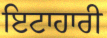
ਇਟਾਹਾਰੀ